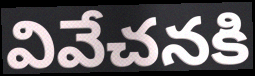
వివేచనకి